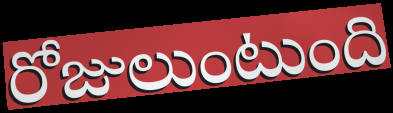
రోజులుంటుంది